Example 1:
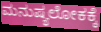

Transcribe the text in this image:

ಮನುಷ್ಯಲೋಕಕ್ಕೆ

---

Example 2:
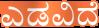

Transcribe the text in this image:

ಎಡವಿದೆ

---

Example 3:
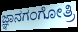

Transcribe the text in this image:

ಜ್ಞಾನಗಂಗೋತ್ರಿ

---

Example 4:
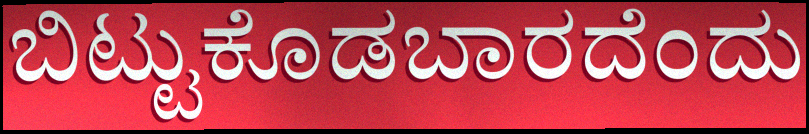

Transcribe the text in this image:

ಬಿಟ್ಟುಕೊಡಬಾರದೆಂದು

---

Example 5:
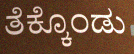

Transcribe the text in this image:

ತೆಕ್ಕೊಂಡು